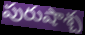
పురుషాశ్చ